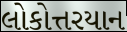
લોકોત્તરયાન